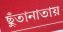
ছুঁতানাতায়